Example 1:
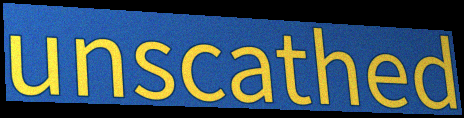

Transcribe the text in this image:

unscathed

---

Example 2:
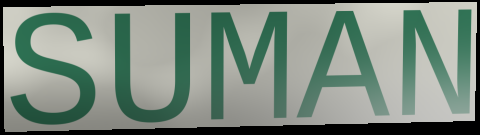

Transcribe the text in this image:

SUMAN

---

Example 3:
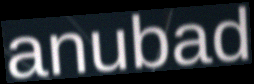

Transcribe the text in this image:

anubad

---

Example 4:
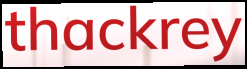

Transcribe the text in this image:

thackrey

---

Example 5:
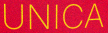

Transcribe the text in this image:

UNICA